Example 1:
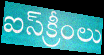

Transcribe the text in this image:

ఐస్‌క్రీంలు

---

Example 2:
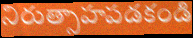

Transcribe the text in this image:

నిరుత్సాహపడకండి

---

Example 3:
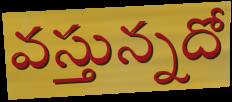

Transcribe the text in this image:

వస్తున్నదో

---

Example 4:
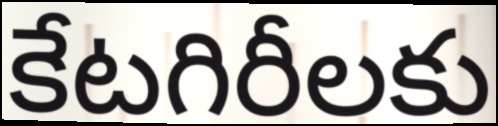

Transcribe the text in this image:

కేటగిరీలకు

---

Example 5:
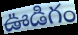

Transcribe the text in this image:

ఊడిగం